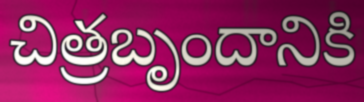
చిత్రబృందానికి